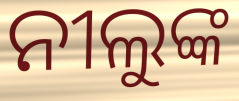
ନୀଲୁଙ୍କ